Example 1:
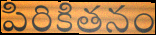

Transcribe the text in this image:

పిరికితనం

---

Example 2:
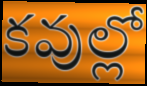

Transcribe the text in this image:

కవుల్లో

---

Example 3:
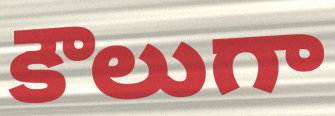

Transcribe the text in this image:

కౌలుగా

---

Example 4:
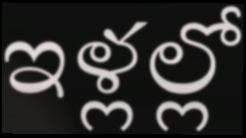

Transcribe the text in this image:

ఇళ్లల్లో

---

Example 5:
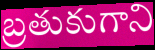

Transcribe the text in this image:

బ్రతుకుగాని